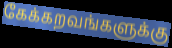
கேக்கறவங்களுக்கு